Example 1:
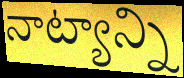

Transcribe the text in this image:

నాట్యాన్ని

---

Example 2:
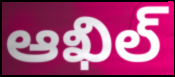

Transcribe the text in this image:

ఆఖిల్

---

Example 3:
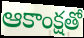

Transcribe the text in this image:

ఆకాంక్షతో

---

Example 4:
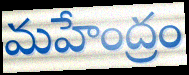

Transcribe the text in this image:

మహేంద్రం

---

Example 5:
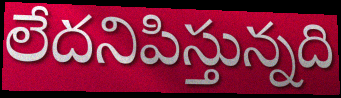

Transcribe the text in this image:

లేదనిపిస్తున్నది